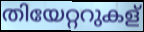
തിയേറ്ററുകള്